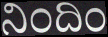
ನಿಂದಿಂ